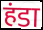
हंडा